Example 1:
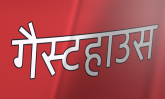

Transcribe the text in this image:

गैस्टहाउस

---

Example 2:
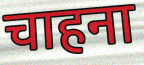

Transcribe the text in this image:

चाहना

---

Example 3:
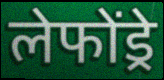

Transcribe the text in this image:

लेफोंड्रे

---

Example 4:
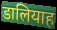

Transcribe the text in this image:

डालियाह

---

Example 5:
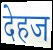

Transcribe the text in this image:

देहज